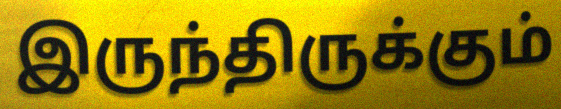
இருந்திருக்கும்